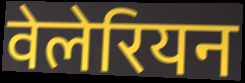
वेलेरियन